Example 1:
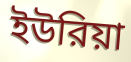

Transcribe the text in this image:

ইউরিয়া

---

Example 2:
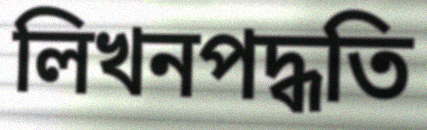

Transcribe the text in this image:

লিখনপদ্ধতি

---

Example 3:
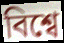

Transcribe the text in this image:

বিশ্বে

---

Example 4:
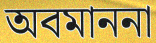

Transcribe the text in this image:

অবমাননা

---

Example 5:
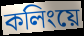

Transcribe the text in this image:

কলিংয়ে